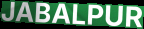
JABALPUR